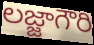
లజ్జాగౌరి